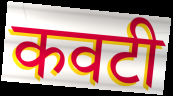
कवटी